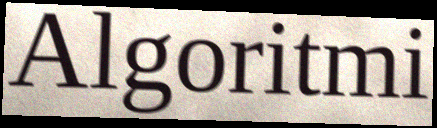
Algoritmi